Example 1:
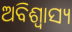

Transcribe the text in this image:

ଅବିଶ୍ୱାସ୍ୟ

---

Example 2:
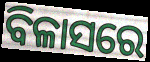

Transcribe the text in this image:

ବିଳାସରେ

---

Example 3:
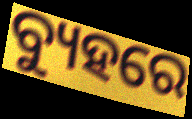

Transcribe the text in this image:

ବ୍ୟୁହରେ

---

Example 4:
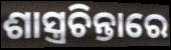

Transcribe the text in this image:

ଶାସ୍ତ୍ରଚିନ୍ତାରେ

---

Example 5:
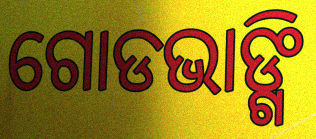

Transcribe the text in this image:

ଗୋଡଭାଙ୍ଗି